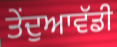
ਤੇਂਦੁਆਵੱਡੀ